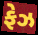
ફેઝ